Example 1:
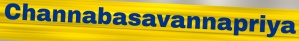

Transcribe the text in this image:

Channabasavannapriya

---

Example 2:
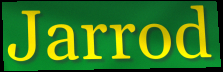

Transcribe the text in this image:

Jarrod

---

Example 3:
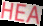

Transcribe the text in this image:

HEA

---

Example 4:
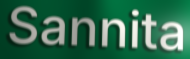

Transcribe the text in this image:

Sannita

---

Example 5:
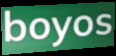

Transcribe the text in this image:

boyos